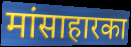
मांसाहारका